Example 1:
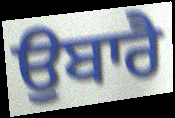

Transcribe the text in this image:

ਉਬਾਰੈ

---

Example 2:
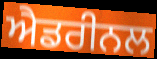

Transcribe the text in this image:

ਐਡਰੀਨਲ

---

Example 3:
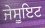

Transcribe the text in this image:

ਜੇਸੂਇਟ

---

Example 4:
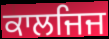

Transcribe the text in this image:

ਕਾਲਜਿਜ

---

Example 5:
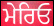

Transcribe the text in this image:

ਮੇਰਿਓ